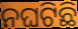
ନଘଟିଛି